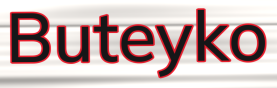
Buteyko